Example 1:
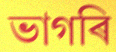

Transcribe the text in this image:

ভাগৰি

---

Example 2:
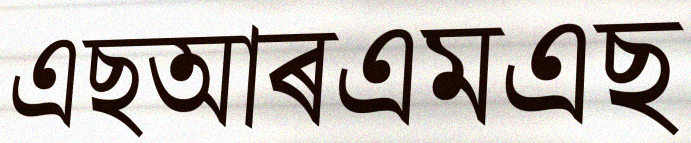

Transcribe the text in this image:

এছআৰএমএছ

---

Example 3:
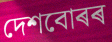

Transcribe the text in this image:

দেশবোৰৰ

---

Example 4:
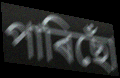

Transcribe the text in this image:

পাৰিছোঁ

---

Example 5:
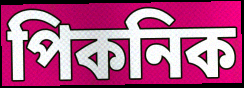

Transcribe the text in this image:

পিকনিক